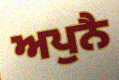
ਅਪੁਨੈ